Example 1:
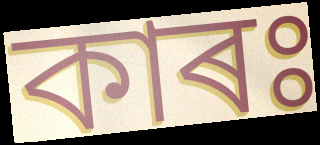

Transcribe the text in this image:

কাৰঃ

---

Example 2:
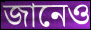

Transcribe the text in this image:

জানেও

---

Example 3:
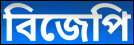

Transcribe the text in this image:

বিজেপি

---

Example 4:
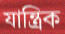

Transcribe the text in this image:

যান্ত্ৰিক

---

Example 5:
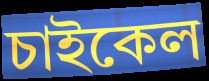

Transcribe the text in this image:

চাইকেল